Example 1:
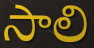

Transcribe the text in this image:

సాలి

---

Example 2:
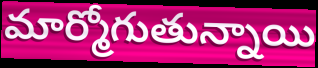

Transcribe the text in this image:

మార్మోగుతున్నాయి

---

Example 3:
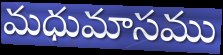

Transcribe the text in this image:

మధుమాసము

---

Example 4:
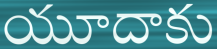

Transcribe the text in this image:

యూదాకు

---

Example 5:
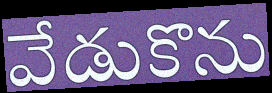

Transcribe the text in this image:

వేడుకొను